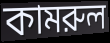
কামরুল